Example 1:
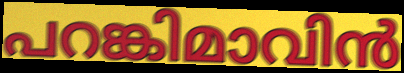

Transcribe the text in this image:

പറങ്കിമാവിൻ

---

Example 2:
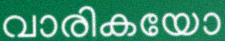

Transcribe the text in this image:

വാരികയോ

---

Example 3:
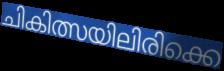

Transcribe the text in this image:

ചികിത്സയിലിരിക്കെ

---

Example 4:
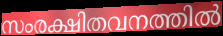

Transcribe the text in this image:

സംരക്ഷിതവനത്തിൽ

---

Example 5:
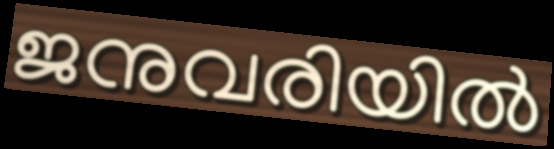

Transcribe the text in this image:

ജനുവരിയിൽ